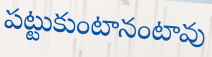
పట్టుకుంటానంటావు